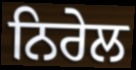
ਨਿਰੇਲ